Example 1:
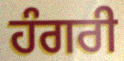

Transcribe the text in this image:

ਹੰਗਰੀ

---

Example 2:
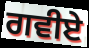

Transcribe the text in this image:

ਗਵੀਏ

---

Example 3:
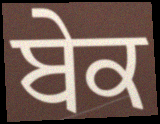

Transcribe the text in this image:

ਬੇਕ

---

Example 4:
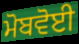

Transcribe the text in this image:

ਮੋਬਵੋਈ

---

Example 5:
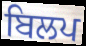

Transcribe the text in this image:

ਬਿਲਪ